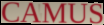
CAMUS